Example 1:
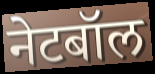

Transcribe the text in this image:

नेटबॉल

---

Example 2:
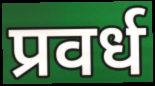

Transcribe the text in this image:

प्रवर्ध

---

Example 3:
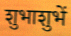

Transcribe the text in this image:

शुभाशुभें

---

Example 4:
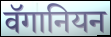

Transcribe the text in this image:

वॅगानियन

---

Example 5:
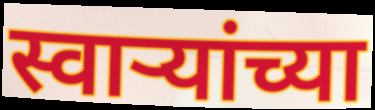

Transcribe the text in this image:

स्वाऱ्यांच्या